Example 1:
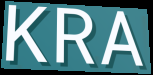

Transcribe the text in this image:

KRA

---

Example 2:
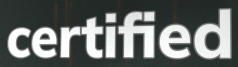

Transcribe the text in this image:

certified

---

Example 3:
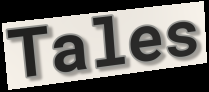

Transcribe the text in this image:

Tales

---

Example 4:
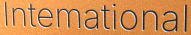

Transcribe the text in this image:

Intemational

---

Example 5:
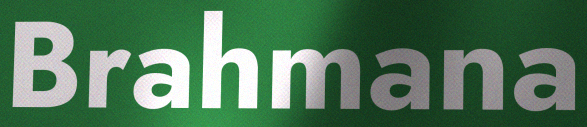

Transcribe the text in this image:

Brahmana